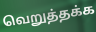
வெறுத்தக்க